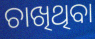
ଚାଖିଥିବା